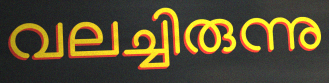
വലച്ചിരുന്നു